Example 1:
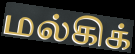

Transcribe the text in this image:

மல்கிக்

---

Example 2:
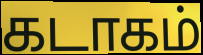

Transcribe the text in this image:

கடாகம்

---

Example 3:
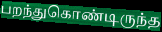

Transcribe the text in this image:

பறந்துகொண்டிருந்த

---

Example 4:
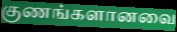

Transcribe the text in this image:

குணங்களானவை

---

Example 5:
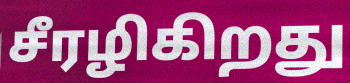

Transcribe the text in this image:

சீரழிகிறது